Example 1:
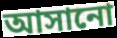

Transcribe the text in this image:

আসানো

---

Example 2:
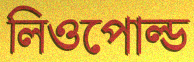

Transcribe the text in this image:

লিওপোল্ড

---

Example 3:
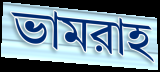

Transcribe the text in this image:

ভামরাহ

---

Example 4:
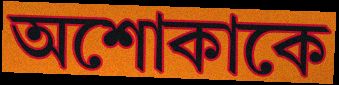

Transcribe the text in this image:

অশোকাকে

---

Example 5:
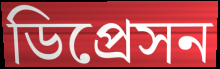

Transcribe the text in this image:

ডিপ্রেসন